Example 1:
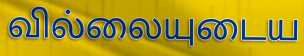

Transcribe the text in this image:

வில்லையுடைய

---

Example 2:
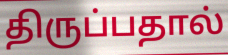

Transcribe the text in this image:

திருப்பதால்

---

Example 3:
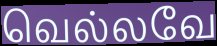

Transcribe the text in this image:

வெல்லவே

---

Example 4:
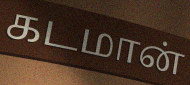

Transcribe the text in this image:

கடமான்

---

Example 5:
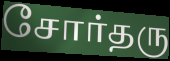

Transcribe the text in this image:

சோர்தரு